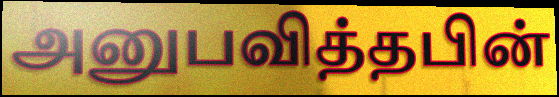
அனுபவித்தபின்